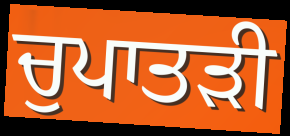
ਚੁਪਾਤੜੀ